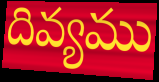
దివ్యము